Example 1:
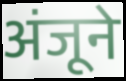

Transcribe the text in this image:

अंजूने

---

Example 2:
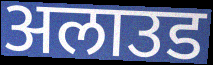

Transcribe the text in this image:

अलाउड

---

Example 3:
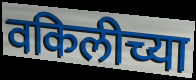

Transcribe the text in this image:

वकिलीच्या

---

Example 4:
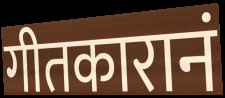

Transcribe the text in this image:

गीतकारानं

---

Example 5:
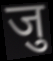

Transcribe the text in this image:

जु